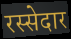
रस्सेदार